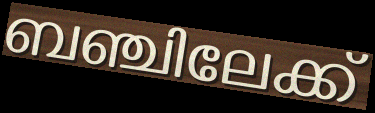
ബഞ്ചിലേക്ക്